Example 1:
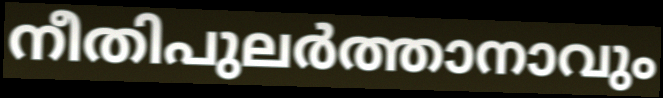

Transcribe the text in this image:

നീതിപുലർത്താനാവും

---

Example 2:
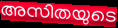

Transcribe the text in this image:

അസിതയുടെ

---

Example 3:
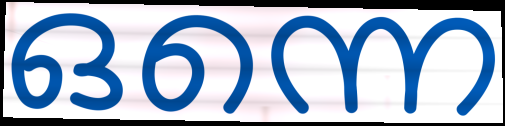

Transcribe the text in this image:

ഒന്നെ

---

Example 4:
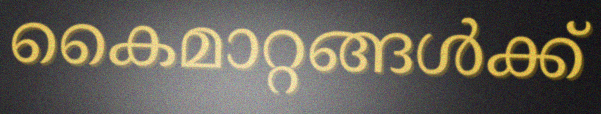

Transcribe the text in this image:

കൈമാറ്റങ്ങൾക്ക്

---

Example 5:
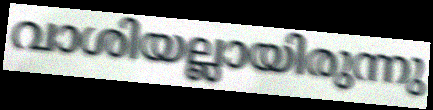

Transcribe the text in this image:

വാശിയല്ലായിരുന്നു